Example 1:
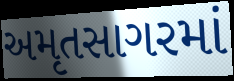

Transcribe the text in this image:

અમૃતસાગરમાં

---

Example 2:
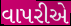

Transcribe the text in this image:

વાપરીએ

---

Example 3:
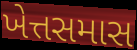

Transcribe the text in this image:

ખેત્તસમાસ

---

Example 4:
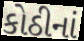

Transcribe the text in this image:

કોઠીનાં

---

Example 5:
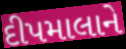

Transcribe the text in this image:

દીપમાલાને